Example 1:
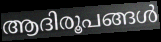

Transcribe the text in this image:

ആദിരൂപങ്ങൾ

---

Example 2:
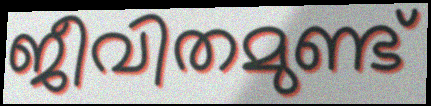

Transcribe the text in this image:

ജീവിതമുണ്ട്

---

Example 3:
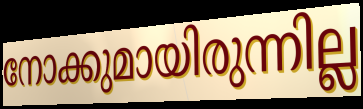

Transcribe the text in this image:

നോക്കുമായിരുന്നില്ല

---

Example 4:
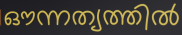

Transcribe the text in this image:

ഔന്നത്യത്തിൽ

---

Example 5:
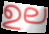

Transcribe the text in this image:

ഉല